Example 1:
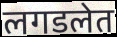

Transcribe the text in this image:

लगडलेत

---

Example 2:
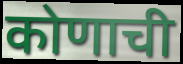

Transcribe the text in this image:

कोणाची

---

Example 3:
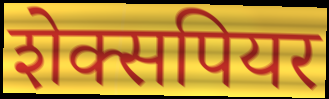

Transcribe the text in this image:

शेक्सपियर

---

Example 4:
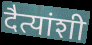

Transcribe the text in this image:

दैत्यांशी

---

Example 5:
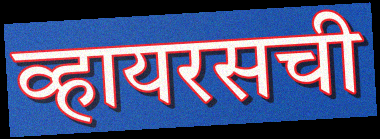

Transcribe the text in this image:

व्हायरसची